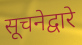
सूचनेद्वारे